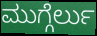
ಮುಗ್ಗೆರ್ಲು